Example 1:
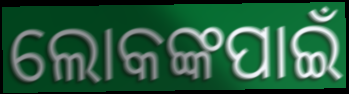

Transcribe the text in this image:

ଲୋକଙ୍କପାଇଁ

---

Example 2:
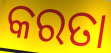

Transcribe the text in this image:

କରତା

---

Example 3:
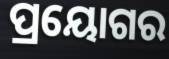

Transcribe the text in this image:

ପ୍ରୟୋଗର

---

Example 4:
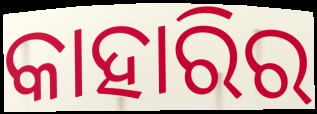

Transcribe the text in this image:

କାହାରିର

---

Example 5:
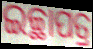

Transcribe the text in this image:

ଇଚ୍ଛାପତ୍ର